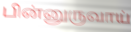
பின்னுருவாய்